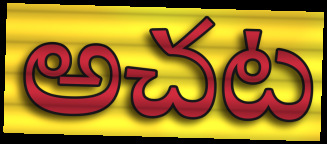
అచట